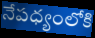
నేపధ్యంలోకి